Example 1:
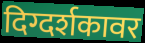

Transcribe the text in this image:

दिग्दर्शकावर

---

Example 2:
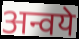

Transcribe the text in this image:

अन्‍वये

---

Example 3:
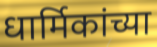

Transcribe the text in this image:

धार्मिकांच्या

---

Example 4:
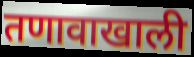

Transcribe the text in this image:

तणावाखाली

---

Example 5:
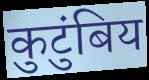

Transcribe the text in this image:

कुटुंबिय